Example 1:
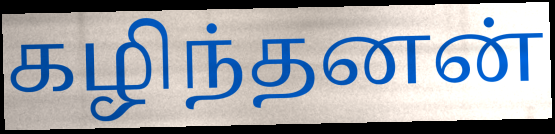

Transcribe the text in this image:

கழிந்தனன்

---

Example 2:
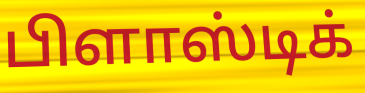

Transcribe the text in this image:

பிளாஸ்டிக்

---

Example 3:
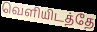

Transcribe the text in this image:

வெளியிடத்தே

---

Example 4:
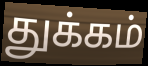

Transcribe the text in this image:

துக்கம்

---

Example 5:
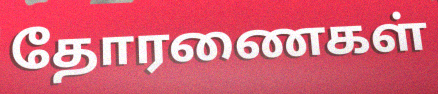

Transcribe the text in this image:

தோரணைகள்